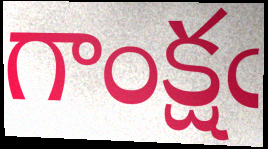
గాంక్షఁ